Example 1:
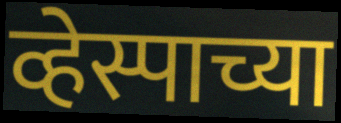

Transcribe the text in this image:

व्हेस्पाच्या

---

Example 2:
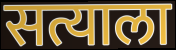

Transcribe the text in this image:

सत्याला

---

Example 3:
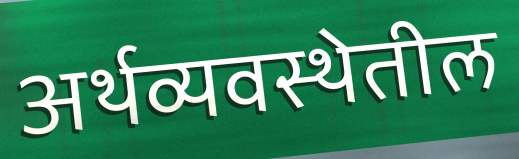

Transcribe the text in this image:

अर्थव्यवस्थेतील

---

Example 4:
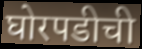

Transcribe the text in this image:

घोरपडीची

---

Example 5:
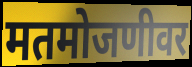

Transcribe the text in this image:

मतमोजणीवर